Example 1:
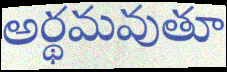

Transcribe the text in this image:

అర్థమవుతూ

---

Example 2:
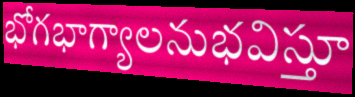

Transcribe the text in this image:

భోగభాగ్యాలనుభవిస్తూ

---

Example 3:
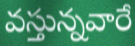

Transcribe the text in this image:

వస్తున్నవారే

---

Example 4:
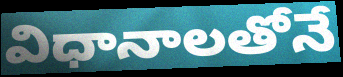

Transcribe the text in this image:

విధానాలతోనే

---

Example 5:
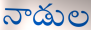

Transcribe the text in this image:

నాడుల